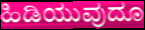
ಹಿಡಿಯುವುದೂ